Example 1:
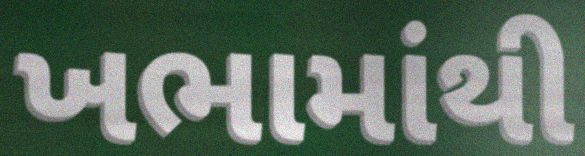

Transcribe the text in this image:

ખભામાંથી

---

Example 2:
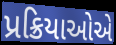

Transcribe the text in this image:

પ્રક્રિયાઓએ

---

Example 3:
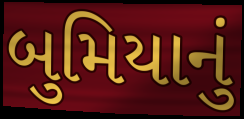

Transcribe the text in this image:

બુમિયાનું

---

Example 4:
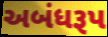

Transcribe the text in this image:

અબંધરૂપ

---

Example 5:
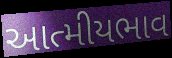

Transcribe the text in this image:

આત્મીયભાવ